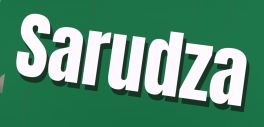
Sarudza